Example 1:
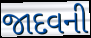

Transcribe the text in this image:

જાદવની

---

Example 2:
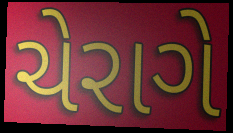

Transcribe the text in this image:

ચેરાગે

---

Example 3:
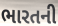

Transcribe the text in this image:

ભારતની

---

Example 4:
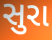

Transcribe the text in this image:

સુરા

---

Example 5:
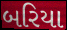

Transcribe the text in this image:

બરિયા